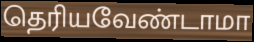
தெரியவேண்டாமா